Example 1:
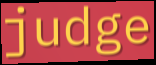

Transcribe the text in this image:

judge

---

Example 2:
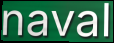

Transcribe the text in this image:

naval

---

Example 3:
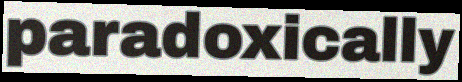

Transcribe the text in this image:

paradoxically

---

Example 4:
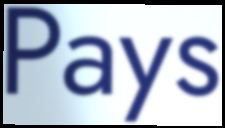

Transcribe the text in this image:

Pays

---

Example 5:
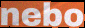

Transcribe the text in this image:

nebo